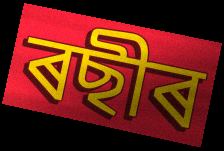
ৰছীৰ